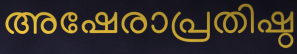
അഷേരാപ്രതിഷ്ഠ